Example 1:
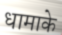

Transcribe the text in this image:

धामाके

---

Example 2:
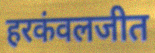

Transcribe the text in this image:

हरकंवलजीत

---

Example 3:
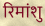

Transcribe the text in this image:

रिमांशु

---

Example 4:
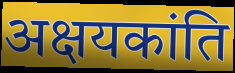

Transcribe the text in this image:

अक्षयकांति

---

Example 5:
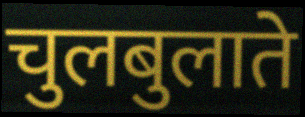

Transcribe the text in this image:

चुलबुलाते